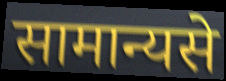
सामान्यसे